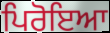
ਪਿਰੋਇਆ